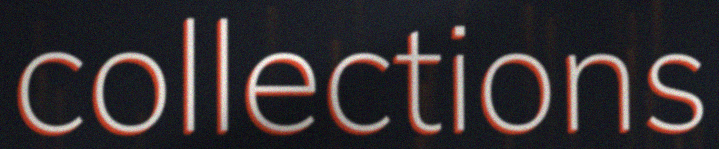
collections